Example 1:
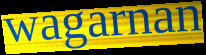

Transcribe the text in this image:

wagarnan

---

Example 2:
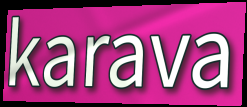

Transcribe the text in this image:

karava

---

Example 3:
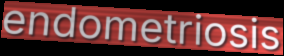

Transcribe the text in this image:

endometriosis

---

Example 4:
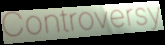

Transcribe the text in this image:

Controversy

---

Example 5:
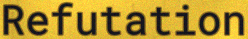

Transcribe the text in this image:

Refutation